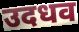
उदधव